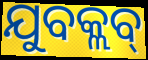
ଯୁବକ୍ଲବ୍